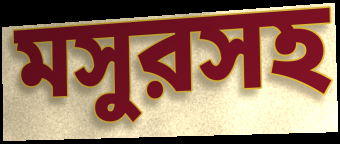
মসুরসহ